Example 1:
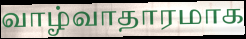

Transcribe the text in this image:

வாழ்வாதாரமாக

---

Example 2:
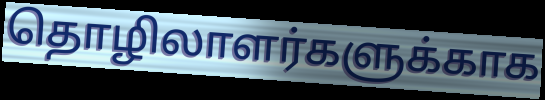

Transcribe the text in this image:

தொழிலாளர்களுக்காக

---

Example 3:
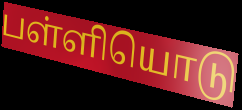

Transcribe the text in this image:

பள்ளியொடு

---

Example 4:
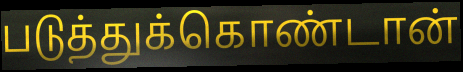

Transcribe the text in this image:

படுத்துக்கொண்டான்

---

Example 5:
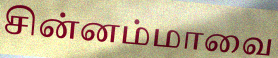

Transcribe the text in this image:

சின்னம்மாவை